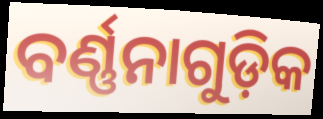
ବର୍ଣ୍ଣନାଗୁଡ଼ିକ